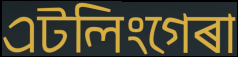
এটলিংগেৰা